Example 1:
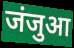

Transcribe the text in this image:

जंजुआ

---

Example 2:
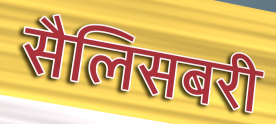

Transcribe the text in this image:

सैलिसबरी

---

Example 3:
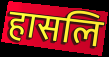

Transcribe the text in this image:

हासलि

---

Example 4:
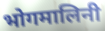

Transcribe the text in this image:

भोगमालिनी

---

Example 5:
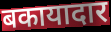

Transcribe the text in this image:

बकायादार